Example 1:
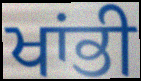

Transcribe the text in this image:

ਖਾਂਭੀ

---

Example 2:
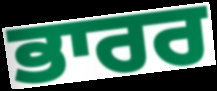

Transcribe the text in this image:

ਭਾਰਰ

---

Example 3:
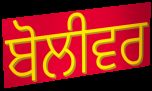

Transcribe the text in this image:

ਬੋਲੀਵਰ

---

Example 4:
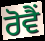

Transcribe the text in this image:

ਰੋਵੈਂ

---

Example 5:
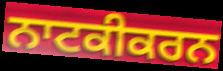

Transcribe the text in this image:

ਨਾਟਕੀਕਰਨ